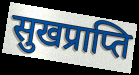
सुखप्राप्ति